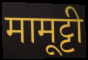
मामूट्टी